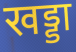
खड्डा